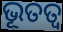
ଭୂତତ୍ୱ